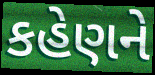
કહેણને